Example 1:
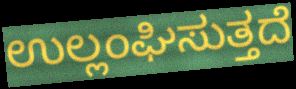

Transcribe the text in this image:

ಉಲ್ಲಂಘಿಸುತ್ತದೆ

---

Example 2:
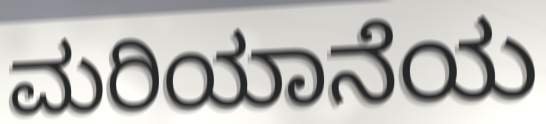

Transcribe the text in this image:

ಮರಿಯಾನೆಯ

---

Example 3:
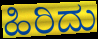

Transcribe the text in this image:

ಹಿರಿದು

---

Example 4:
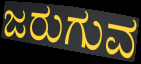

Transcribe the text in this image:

ಜರುಗುವ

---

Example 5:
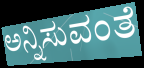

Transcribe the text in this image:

ಅನ್ನಿಸುವಂತೆ